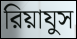
রিয়াযুস